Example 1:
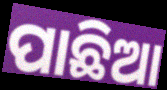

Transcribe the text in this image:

ପାଛିଆ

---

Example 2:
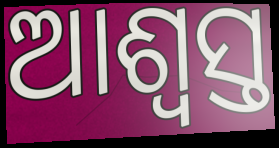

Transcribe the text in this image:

ଆଶ୍ଵସ୍ତ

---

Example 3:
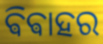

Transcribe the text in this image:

ଵିଵାହର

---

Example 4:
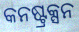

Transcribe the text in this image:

କନଷ୍ଟ୍ରକ୍ସନ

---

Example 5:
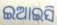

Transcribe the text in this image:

ଇଆଇସି